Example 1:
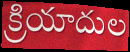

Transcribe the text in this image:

క్రియాదుల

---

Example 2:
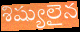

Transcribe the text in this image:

శిష్యులైన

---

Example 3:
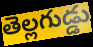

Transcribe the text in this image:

తెల్లగుడ్డు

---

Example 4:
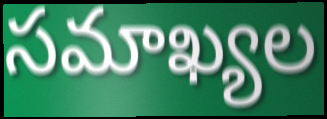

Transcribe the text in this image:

సమాఖ్యల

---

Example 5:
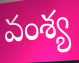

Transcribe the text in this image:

వంశ్య